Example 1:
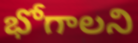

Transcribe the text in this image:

భోగాలని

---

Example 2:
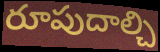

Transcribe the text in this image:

రూపుదాల్చి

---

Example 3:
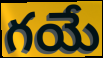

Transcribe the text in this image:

గయే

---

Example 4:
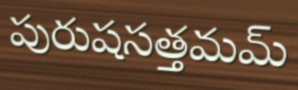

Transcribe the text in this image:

పురుషసత్తమమ్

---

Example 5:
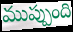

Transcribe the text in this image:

ముప్పుంది